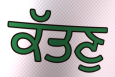
ਕੱਤਣੁ